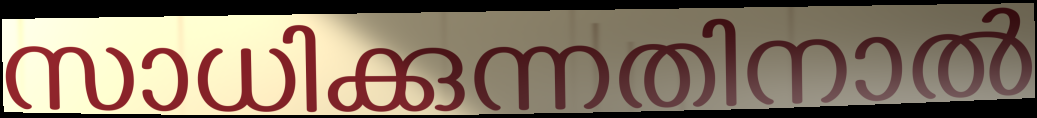
സാധിക്കുന്നതിനാൽ